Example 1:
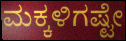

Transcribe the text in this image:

ಮಕ್ಕಳಿಗಷ್ಟೇ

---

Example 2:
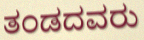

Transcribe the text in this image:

ತಂಡದವರು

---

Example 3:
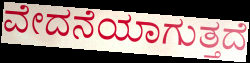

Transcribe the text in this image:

ವೇದನೆಯಾಗುತ್ತದೆ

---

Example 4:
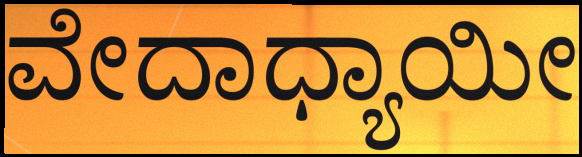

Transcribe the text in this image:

ವೇದಾಧ್ಯಾಯೀ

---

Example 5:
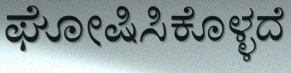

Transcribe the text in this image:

ಘೋಷಿಸಿಕೊಳ್ಳದೆ